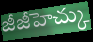
జీజీహెచ్కు